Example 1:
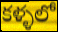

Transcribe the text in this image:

కళ్ళలో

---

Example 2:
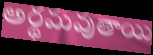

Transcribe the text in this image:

అర్థమవుతాయి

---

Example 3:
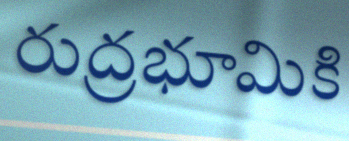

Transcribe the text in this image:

రుద్రభూమికి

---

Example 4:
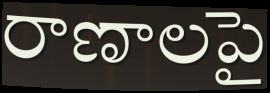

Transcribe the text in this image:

రాణాలపై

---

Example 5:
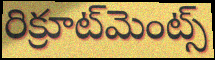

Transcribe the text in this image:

రిక్రూట్‌మెంట్స్